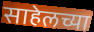
साहेलच्या